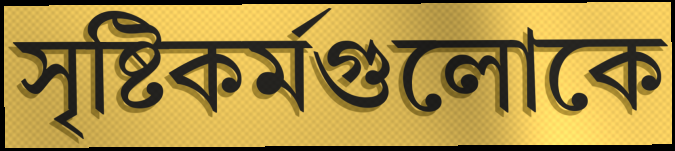
সৃষ্টিকর্মগুলোকে